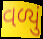
વળ્યું